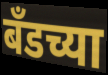
बँडच्या